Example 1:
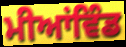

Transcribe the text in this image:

ਮੀਆਂਵਿੰਡ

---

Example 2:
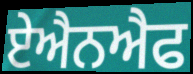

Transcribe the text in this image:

ਏਐਨਐਫ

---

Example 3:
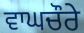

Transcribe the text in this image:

ਵਾਘਚੌਰੇ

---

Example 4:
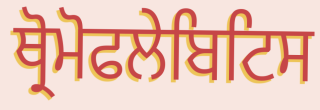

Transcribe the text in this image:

ਥ੍ਰੋਮੋਫਲੇਬਿਟਿਸ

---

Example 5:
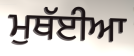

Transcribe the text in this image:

ਮੁਥੱਈਆ